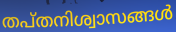
തപ്തനിശ്വാസങ്ങൾ